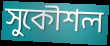
সুকৌশল